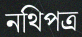
নথিপত্র